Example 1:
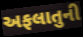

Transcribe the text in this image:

અફલાતુની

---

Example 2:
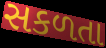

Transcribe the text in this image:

સકળતા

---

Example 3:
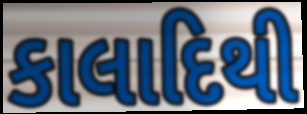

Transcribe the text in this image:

કાલાદિથી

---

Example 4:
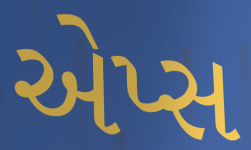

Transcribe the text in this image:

એપ્સ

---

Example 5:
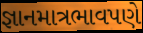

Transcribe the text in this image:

જ્ઞાનમાત્રભાવપણે